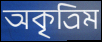
অকৃত্ৰিম